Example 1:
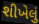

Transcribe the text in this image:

શીખેલું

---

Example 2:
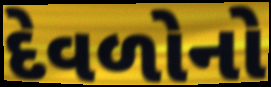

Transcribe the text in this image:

દેવળોનો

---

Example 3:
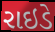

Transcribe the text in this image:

રાઇડે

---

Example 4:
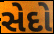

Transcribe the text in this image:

સેદો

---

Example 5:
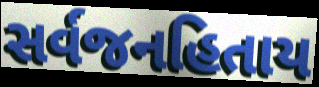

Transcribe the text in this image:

સર્વજનહિતાય